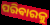
ପରିଵାରକୁ